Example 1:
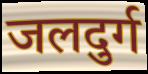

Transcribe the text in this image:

जलदुर्ग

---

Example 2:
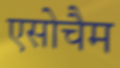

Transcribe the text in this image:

एसोचैम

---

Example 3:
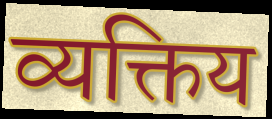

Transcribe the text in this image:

व्यक्तिय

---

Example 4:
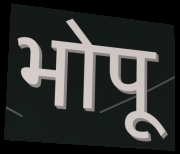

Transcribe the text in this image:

भोपू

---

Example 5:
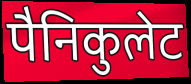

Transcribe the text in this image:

पैनिकुलेट